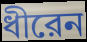
ধীরেন